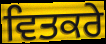
ਵਿਤਕਰੇ